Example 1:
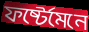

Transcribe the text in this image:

ফৰ্ষ্টেমেনে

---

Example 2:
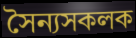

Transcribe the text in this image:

সৈন্যসকলক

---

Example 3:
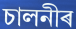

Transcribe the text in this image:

চালনীৰ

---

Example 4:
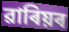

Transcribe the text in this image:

ৱাৰিয়ৰ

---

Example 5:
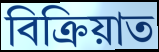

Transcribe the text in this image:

বিক্ৰিয়াত